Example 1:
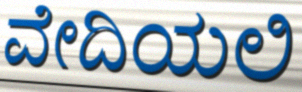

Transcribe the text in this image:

ವೇದಿಯಲಿ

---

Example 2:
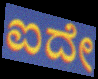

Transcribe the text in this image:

ಐದೇ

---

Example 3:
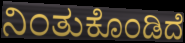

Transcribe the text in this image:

ನಿಂತುಕೊಂಡಿದೆ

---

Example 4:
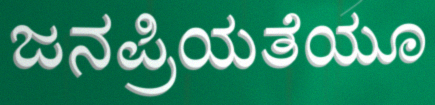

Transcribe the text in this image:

ಜನಪ್ರಿಯತೆಯೂ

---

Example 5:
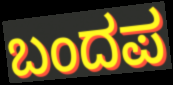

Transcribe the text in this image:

ಬಂದಪ